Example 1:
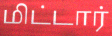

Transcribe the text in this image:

மிட்டார்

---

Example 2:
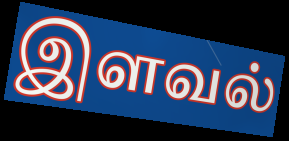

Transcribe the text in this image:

இளவல்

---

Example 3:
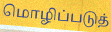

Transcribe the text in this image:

மொழிப்படுத்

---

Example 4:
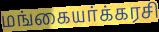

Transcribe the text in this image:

மங்கையர்க்கரசி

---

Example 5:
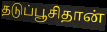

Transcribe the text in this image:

தடுப்பூசிதான்